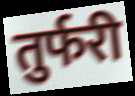
तुर्फरी